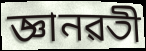
জ্ঞানৱতী